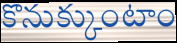
కొనుక్కుంటాం